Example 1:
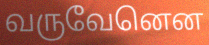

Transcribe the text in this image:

வருவேனென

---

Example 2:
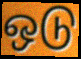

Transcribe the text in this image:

ஒடு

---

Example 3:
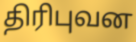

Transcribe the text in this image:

திரிபுவன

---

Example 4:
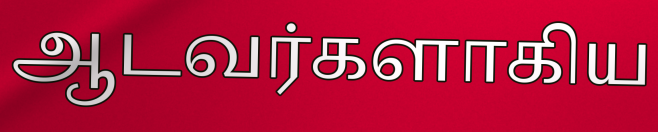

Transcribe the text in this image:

ஆடவர்களாகிய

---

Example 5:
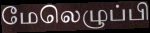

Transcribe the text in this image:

மேலெழுப்பி